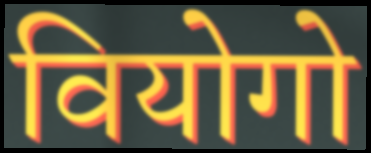
वियोगो